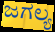
ಜಗಲ್ಯ